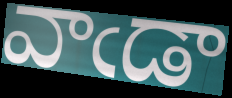
వాఁడా